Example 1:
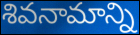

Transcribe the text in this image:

శివనామాన్ని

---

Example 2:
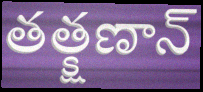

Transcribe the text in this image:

తత్క్షణాన్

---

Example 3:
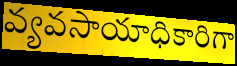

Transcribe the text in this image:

వ్యవసాయాధికారిగా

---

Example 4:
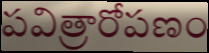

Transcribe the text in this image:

పవిత్రారోపణం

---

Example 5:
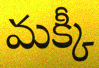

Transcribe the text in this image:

మక్కీ